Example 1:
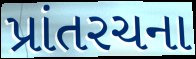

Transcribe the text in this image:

પ્રાંતરચના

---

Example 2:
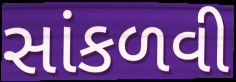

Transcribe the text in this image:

સાંકળવી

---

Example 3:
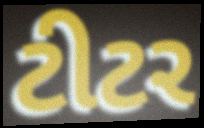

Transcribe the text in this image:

ટીટર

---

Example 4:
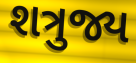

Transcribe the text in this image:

શત્રુજ્ય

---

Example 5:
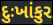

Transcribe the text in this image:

દુઃખાંકુર